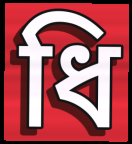
ধি